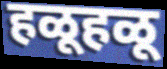
हळूहळू